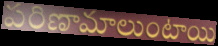
పరిణామాలుంటాయి